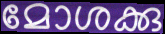
മോശക്കു